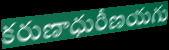
కరుణాధురీణయగు